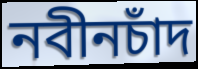
নবীনচাঁদ